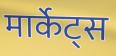
मार्केट्स